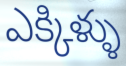
ఎక్కిళ్ళు